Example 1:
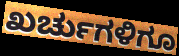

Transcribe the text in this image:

ಖರ್ಚುಗಳಿಗೂ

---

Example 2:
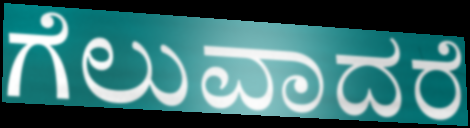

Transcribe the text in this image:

ಗೆಲುವಾದರೆ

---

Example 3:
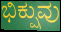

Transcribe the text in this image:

ಭಿಕ್ಷುವು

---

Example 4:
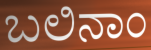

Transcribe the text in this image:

ಬಲಿನಾಂ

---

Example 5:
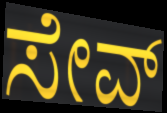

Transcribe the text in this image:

ಸೇವ್